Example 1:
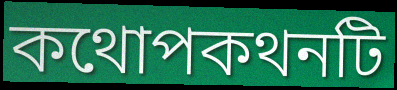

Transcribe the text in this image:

কথোপকথনটি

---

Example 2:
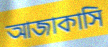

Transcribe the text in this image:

আজাকাসি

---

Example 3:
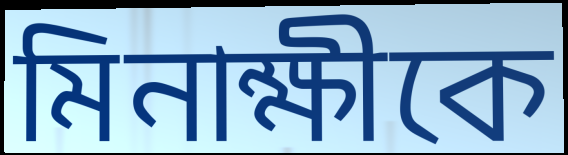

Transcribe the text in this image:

মিনাক্ষীকে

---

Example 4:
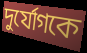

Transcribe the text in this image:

দুর্যোগকে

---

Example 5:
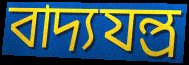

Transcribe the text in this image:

বাদ্যযন্ত্র